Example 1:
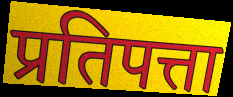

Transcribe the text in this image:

प्रतिपत्ता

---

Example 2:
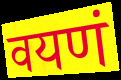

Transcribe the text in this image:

वयणं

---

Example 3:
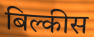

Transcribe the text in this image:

बिल्कीस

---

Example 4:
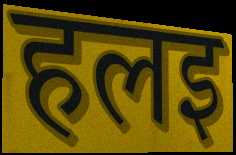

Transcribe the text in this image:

हलइ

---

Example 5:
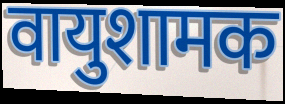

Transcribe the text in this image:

वायुशामक